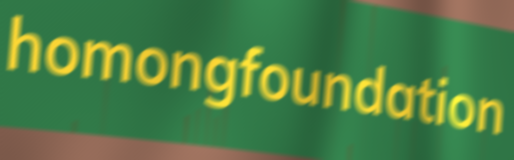
homongfoundation